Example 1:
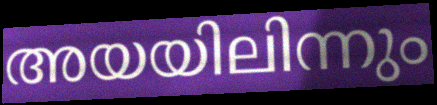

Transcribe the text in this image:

അയയിലിന്നും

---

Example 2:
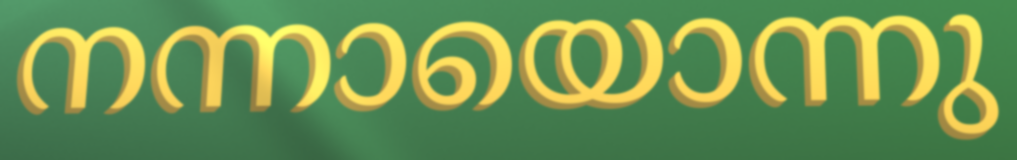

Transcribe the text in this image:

നന്നായൊന്നു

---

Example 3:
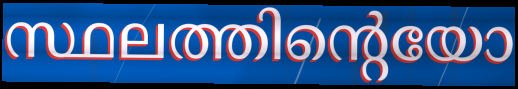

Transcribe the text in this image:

സ്ഥലത്തിന്റെയോ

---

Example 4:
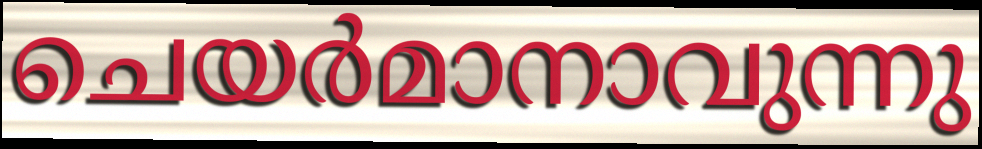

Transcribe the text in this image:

ചെയർമാനാവുന്നു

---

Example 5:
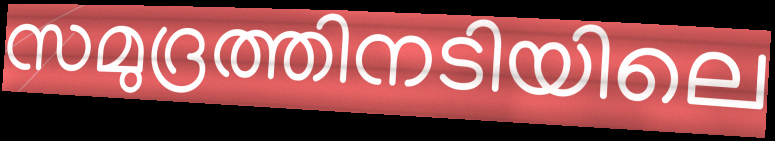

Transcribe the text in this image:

സമുദ്രത്തിനടിയിലെ